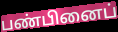
பண்பினைப்